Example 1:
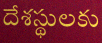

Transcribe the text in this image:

దేశస్థులకు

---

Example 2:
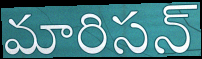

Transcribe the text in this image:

మారిసన్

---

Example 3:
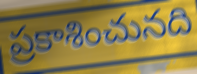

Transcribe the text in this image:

ప్రకాశించునది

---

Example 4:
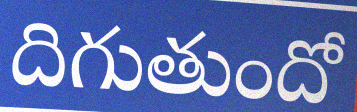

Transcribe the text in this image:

దిగుతుందో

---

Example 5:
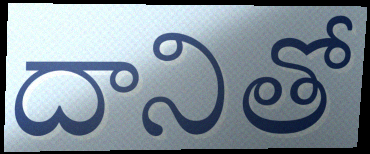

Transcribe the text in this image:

దానితో